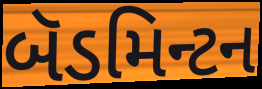
બૅડમિન્ટન